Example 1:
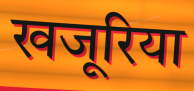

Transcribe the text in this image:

खजूरिया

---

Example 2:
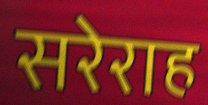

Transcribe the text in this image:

सरेराह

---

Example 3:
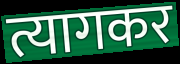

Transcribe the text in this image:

त्यागकर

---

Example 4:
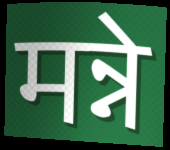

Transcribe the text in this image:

मन्ने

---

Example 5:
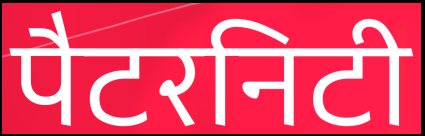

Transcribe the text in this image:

पैटरनिटी